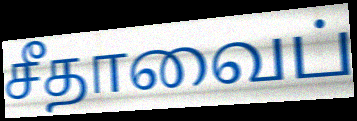
சீதாவைப்